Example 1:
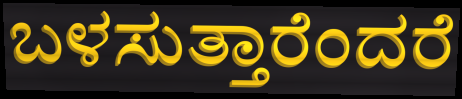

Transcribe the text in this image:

ಬಳಸುತ್ತಾರೆಂದರೆ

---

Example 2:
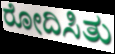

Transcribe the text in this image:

ರೋದಿಸಿತು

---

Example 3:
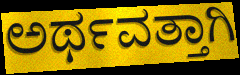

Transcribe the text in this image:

ಅರ್ಥವತ್ತಾಗಿ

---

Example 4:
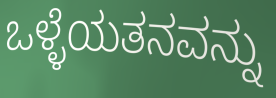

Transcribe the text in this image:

ಒಳ್ಳೆಯತನವನ್ನು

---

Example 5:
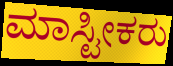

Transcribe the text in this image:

ಮಾಸ್ಟೀಕರು